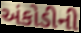
અંકોડીની